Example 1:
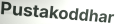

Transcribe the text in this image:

Pustakoddhar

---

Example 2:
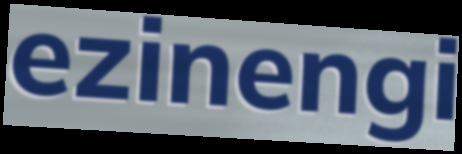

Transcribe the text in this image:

ezinengi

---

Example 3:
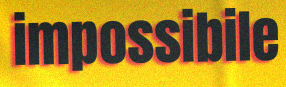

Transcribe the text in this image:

impossibile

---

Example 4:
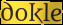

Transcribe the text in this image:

dokle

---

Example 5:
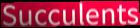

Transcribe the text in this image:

Succulents